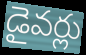
డైవర్లు